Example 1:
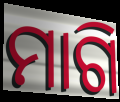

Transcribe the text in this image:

ମାଗି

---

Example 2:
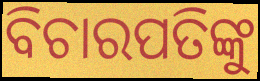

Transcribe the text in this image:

ବିଚାରପତିଙ୍କୁ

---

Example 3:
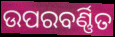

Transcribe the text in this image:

ଉପରବର୍ଣ୍ଣିତ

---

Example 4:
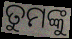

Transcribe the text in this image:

ତୁମଙ୍କୁ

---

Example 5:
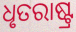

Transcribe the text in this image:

ଧୃତରାଷ୍ଟ୍ର